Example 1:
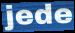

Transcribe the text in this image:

jede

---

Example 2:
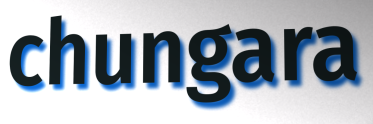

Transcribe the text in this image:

chungara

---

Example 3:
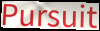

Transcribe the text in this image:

Pursuit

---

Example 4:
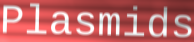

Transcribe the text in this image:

Plasmids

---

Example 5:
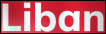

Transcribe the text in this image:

Liban